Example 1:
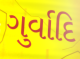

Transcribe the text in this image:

ગુર્વાદિ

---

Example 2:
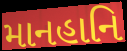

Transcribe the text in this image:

માનહાનિ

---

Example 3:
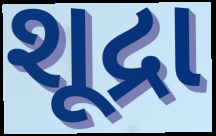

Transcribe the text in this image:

શૂદ્રા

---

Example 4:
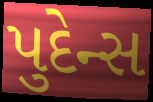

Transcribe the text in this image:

પુદેન્સ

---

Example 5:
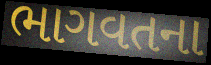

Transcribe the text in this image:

ભાગવતના